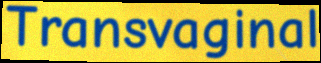
Transvaginal